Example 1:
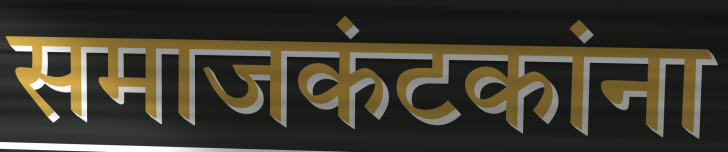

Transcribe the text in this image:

समाजकंटकांना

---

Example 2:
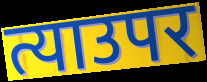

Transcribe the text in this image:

त्याउपर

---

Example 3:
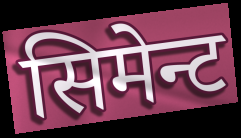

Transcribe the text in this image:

सिमेन्ट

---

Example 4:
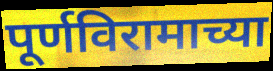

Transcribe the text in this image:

पूर्णविरामाच्या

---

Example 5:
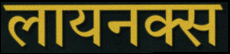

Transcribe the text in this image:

लायनक्स